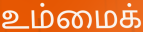
உம்மைக்